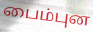
பைம்புன